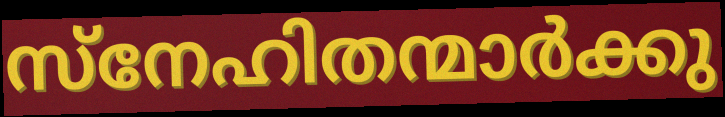
സ്നേഹിതന്മാർക്കു